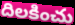
దిలకించు